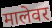
मालेवर